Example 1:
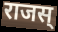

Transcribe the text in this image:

राजस्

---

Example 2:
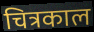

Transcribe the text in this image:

चित्रकाल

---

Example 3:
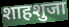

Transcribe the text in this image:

शाहशुजा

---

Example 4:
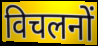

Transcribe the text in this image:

विचलनों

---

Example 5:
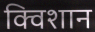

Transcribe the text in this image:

क्विशान